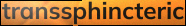
transsphincteric